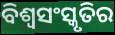
ବିଶ୍ୱସଂସ୍କୃତିର